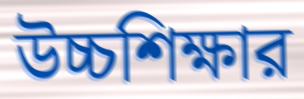
উচ্চশিক্ষার